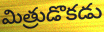
మిత్రుడొకడు